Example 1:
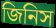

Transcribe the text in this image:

জিনিস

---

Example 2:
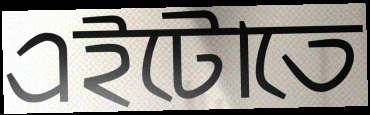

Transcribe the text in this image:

এইটোতে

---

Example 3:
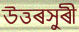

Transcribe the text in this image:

উত্তৰসুৰী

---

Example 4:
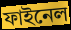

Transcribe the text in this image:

ফাইনেল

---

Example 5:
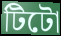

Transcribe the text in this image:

টিটো